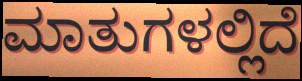
ಮಾತುಗಳಲ್ಲಿದೆ